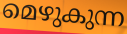
മെഴുകുന്ന